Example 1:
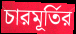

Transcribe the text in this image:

চারমূর্তির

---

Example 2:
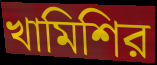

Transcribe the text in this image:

খামিশির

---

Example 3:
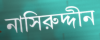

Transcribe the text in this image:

নাসিরুদ্দীন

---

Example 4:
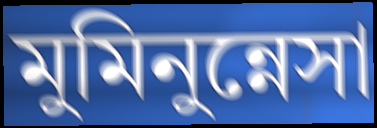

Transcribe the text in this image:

মুমিনুন্নেসা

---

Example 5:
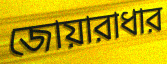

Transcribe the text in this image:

জোয়ারাধার